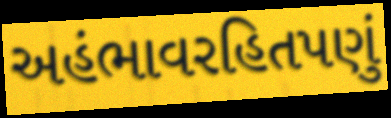
અહંભાવરહિતપણું